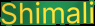
Shimali